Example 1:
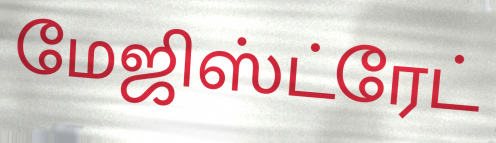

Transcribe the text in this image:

மேஜிஸ்ட்ரேட்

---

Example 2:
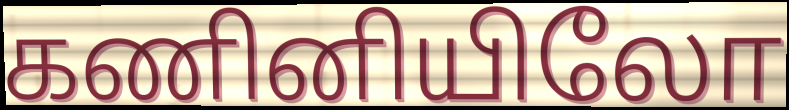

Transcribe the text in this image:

கணினியிலோ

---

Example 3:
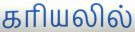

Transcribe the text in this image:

கரியலில்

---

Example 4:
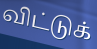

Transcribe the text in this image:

விட்டுக்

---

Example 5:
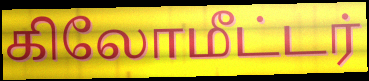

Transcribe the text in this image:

கிலோமீட்டர்